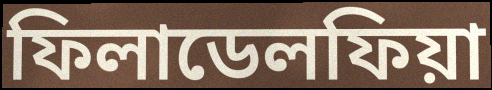
ফিলাডেলফিয়া